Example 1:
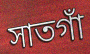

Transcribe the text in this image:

সাতগাঁ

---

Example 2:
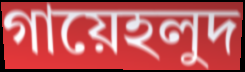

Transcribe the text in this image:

গায়েহলুদ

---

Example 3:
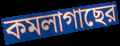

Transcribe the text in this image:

কমলাগাছের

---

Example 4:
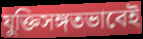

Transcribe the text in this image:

যুক্তিসঙ্গতভাবেই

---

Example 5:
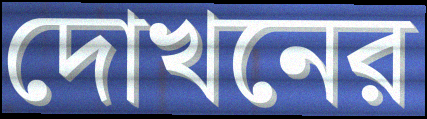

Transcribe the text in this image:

দোখনের